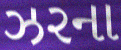
ઝરના